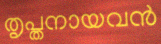
തൃപ്തനായവൻ